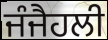
ਜੰਜੈਹਲੀ